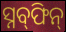
ସ୍ନବ୍‍ଫିନ୍